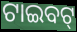
ଟାଇବଟ୍